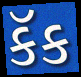
કૅક